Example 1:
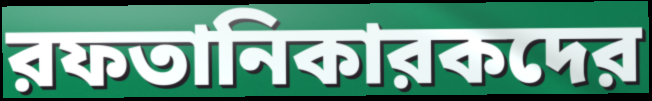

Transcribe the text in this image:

রফতানিকারকদের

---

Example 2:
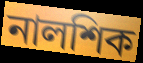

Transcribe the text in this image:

নালশিক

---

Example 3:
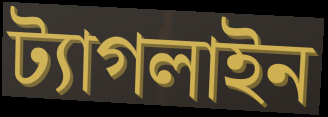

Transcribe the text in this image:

ট্যাগলাইন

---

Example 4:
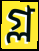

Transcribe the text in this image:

গ্ল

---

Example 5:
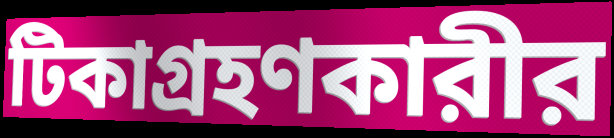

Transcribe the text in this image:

টিকাগ্রহণকারীর